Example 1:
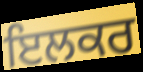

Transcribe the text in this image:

ਇਲਕਰ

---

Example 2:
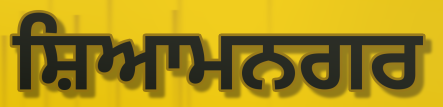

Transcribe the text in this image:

ਸ਼ਿਆਮਨਗਰ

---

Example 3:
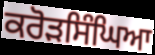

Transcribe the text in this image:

ਕਰੋੜਸਿੰਘਿਆ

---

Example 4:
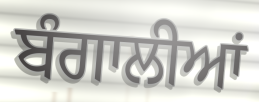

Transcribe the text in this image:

ਬੰਗਾਲੀਆਂ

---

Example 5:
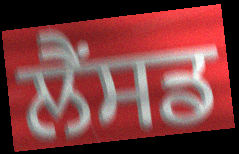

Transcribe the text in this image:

ਲੈਂਸਡ